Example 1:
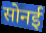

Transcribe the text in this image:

सोनई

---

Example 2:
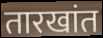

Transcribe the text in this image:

तारखांत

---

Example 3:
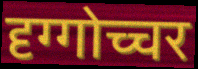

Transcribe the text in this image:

दृग्गोच्चर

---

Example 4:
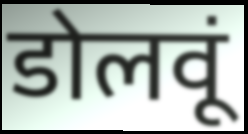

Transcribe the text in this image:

डोलवूं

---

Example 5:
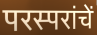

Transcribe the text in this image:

परस्परांचें